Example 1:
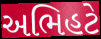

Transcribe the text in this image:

અભિહટે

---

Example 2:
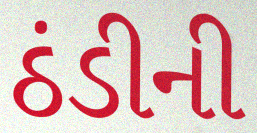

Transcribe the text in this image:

ઠંડીની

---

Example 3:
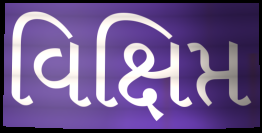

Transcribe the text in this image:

વિક્ષિપ્ત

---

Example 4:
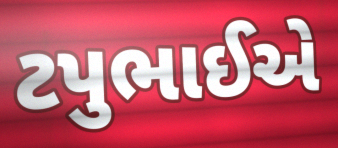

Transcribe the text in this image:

ટપુભાઈએ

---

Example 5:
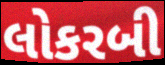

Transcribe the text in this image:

લોકરબી